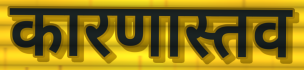
कारणास्तव